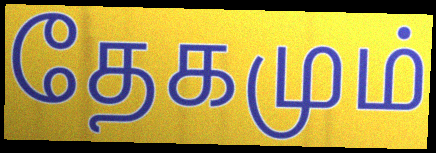
தேகமும்